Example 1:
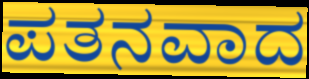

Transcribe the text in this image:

ಪತನವಾದ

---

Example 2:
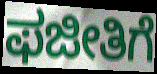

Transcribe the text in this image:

ಫಜೀತಿಗೆ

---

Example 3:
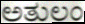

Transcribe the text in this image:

ಅತುಲಂ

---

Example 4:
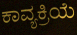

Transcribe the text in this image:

ಕಾವ್ಯಕ್ರಿಯೆ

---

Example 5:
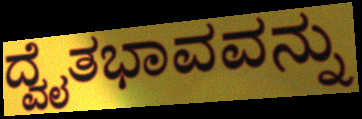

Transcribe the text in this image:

ದ್ವೈತಭಾವವನ್ನು